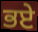
ਭਏ